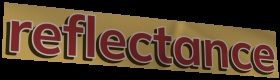
reflectance